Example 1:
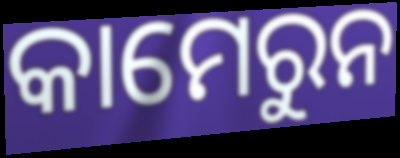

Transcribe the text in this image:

କାମେରୁନ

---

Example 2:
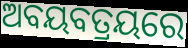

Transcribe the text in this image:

ଅବୟବତ୍ରୟରେ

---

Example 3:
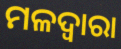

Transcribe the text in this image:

ମଳଦ୍ଵାରା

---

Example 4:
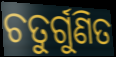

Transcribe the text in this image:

ଚତୁର୍ଗୁଣିତ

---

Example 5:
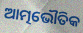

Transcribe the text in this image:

ଆତ୍ମଭୌତିକ